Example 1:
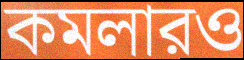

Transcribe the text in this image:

কমলারও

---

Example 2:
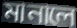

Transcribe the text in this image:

মানালে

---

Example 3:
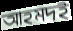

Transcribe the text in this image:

আহমদই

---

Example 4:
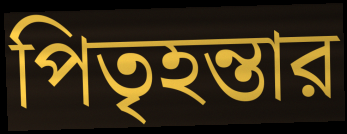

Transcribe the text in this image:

পিতৃহন্তার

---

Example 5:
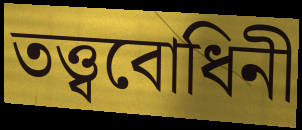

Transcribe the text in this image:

তত্ত্ববোধিনী